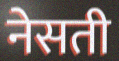
नेसती